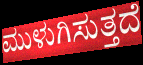
ಮುಳುಗಿಸುತ್ತದೆ